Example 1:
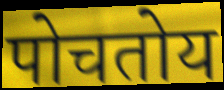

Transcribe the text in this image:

पोचतोय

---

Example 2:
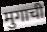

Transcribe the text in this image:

मुगाची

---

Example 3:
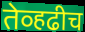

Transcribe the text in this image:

तेव्हढीच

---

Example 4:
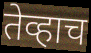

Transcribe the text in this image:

तेव्हाच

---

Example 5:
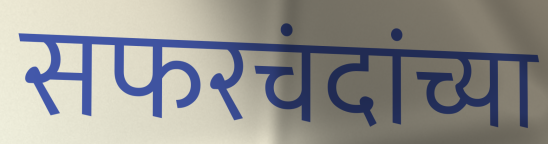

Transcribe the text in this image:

सफरचंदांच्या